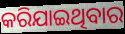
କରିଯାଇଥିବାର